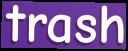
trash